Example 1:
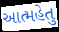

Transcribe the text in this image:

આત્મહેતુ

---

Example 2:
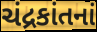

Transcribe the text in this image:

ચંદ્રકાંતનાં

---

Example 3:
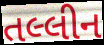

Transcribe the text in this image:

તલ્લીન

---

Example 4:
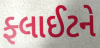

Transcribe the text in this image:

ફ્લાઈટને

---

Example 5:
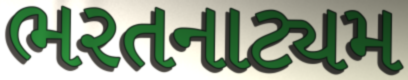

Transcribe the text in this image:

ભરતનાટ્યમ